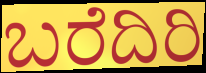
ಬರೆದಿರಿ